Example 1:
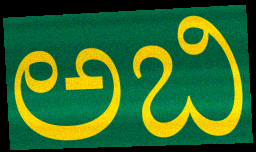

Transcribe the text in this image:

ಅಬಿ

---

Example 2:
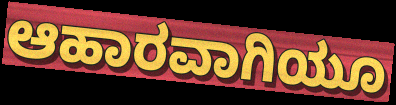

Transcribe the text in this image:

ಆಹಾರವಾಗಿಯೂ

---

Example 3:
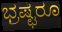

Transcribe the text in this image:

ಭ್ರಷ್ಟರೂ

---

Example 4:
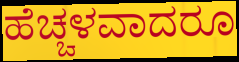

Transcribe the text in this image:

ಹೆಚ್ಚಳವಾದರೂ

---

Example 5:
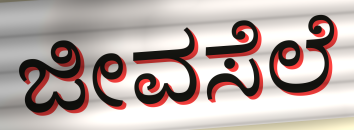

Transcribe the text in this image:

ಜೀವಸೆಲೆ